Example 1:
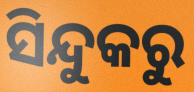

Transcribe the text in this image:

ସିନ୍ଦୁକରୁ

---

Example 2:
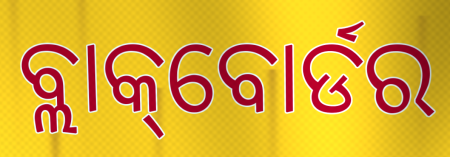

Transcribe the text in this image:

ବ୍ଲାକ୍‌ବୋର୍ଡର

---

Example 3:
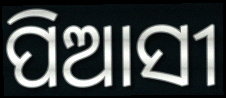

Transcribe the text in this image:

ପିଆସୀ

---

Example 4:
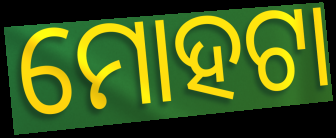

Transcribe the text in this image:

ମୋହଟା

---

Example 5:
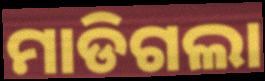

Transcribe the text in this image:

ମାଡିଗଲା